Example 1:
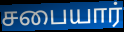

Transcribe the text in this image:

சபையார்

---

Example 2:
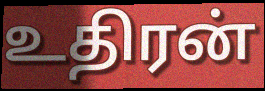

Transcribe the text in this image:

உதிரன்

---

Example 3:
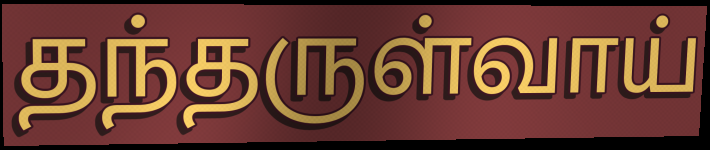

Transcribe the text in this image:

தந்தருள்வாய்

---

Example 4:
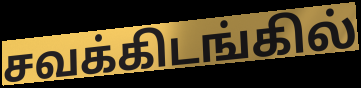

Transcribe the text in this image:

சவக்கிடங்கில்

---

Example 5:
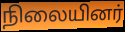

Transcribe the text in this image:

நிலையினர்